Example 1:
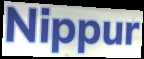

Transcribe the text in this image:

Nippur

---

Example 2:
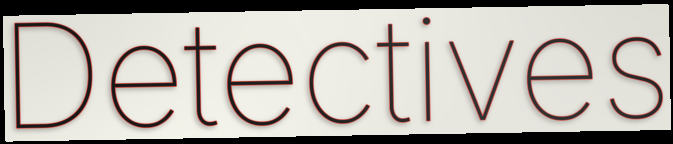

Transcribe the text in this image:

Detectives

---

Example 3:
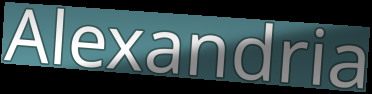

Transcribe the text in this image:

Alexandria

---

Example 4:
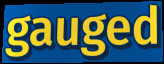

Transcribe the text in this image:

gauged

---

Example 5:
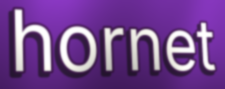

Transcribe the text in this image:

hornet